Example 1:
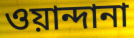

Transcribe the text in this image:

ওয়ান্দানা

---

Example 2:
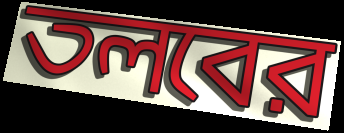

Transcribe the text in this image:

তলবের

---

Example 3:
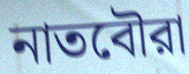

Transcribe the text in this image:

নাতবৌরা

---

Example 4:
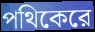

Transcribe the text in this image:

পথিকেরে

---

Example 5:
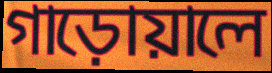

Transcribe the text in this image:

গাড়োয়ালে